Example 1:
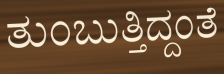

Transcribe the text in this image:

ತುಂಬುತ್ತಿದ್ದಂತೆ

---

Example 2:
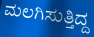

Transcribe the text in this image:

ಮಲಗಿಸುತ್ತಿದ್ದ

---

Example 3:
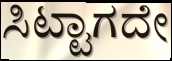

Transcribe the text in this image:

ಸಿಟ್ಟಾಗದೇ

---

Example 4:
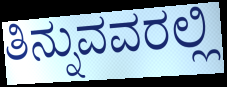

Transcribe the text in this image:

ತಿನ್ನುವವರಲ್ಲಿ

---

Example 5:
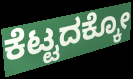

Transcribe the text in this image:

ಕೆಟ್ಟದಕ್ಕೋ